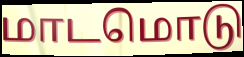
மாடமொடு